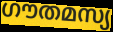
ഗൗതമസ്യ